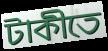
টাকীতে